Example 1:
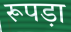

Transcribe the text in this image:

रूपड़ा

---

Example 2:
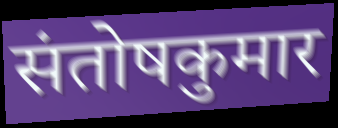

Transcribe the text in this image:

संतोषकुमार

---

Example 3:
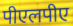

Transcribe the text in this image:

पीएलपीए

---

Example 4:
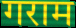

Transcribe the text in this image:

गराम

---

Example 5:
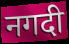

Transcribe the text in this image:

नगदी